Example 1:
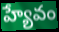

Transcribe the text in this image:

హ్యేవం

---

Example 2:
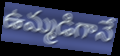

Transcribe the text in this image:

ఉమ్మడిగానే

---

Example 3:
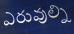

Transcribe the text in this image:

ఎరువుల్ని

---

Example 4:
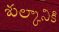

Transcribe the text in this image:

శుల్కానికి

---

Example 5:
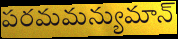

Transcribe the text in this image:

పరమమన్యుమాన్